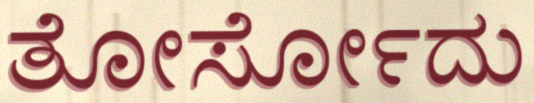
ತೋರ್ಸೋದು